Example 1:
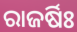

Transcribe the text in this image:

ରାଜର୍ଷିଃ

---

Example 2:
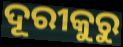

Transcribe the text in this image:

ଦୂରୀକୁରୁ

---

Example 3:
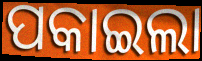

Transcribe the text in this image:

ପକାଇଲା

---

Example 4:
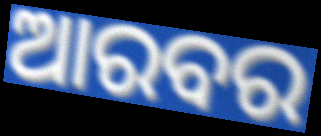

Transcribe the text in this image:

ଆରବର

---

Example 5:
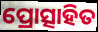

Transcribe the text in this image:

ପ୍ରୋତ୍ସାହିତ